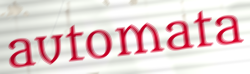
automata